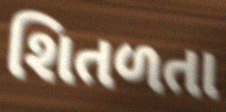
શિતળતા